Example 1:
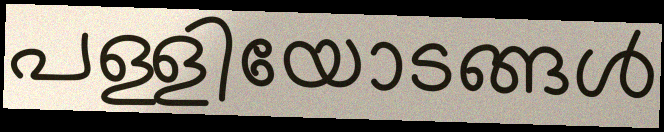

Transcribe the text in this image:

പള്ളിയോടങ്ങൾ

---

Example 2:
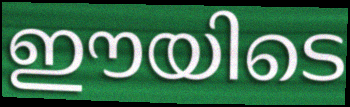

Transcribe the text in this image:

ഈയിടെ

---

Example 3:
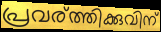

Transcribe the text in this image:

പ്രവര്ത്തിക്കുവിന്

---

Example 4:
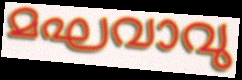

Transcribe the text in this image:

മഘവാവു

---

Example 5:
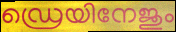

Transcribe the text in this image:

ഡ്രെയിനേജും